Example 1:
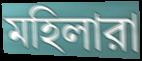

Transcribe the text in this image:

মহিলারা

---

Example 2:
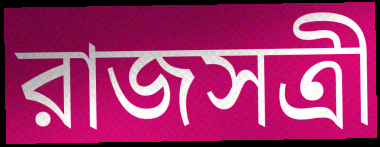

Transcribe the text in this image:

রাজসত্রী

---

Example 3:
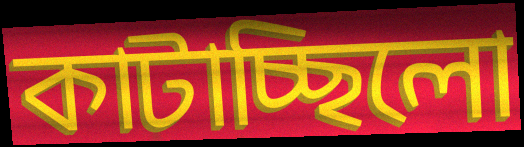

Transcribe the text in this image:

কাটাচ্ছিলো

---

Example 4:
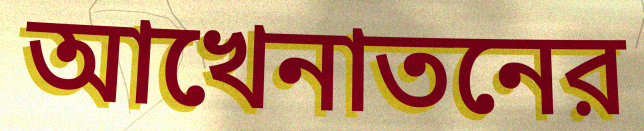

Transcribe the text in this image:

আখেনাতনের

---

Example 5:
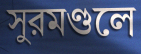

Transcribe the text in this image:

সুরমণ্ডলে